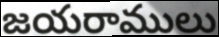
జయరాములు